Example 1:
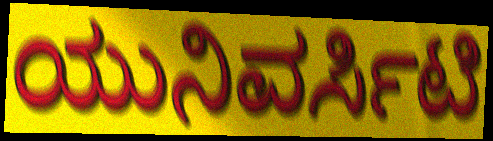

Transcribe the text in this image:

ಯುನಿವರ್ಸಿಟಿ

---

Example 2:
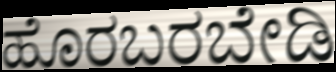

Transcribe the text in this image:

ಹೊರಬರಬೇಡಿ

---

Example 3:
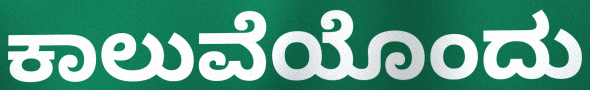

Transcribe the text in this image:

ಕಾಲುವೆಯೊಂದು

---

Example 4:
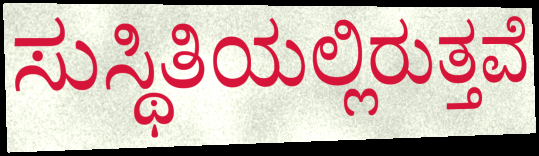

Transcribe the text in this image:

ಸುಸ್ಥಿತಿಯಲ್ಲಿರುತ್ತವೆ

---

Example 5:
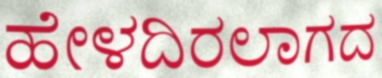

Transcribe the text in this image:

ಹೇಳದಿರಲಾಗದ